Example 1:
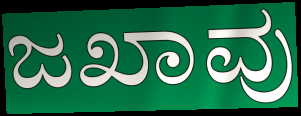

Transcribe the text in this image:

ಜಖಾವು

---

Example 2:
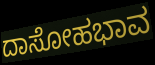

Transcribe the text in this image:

ದಾಸೋಹಭಾವ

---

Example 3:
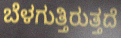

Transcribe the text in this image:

ಬೆಳಗುತ್ತಿರುತ್ತದೆ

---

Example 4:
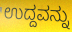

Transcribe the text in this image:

ಉದ್ದವನ್ನು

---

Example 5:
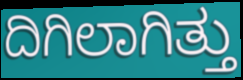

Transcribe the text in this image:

ದಿಗಿಲಾಗಿತ್ತು